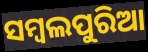
ସମ୍ବଲପୁରିଆ